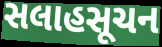
સલાહસૂચન